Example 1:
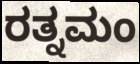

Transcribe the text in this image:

ರತ್ನಮಂ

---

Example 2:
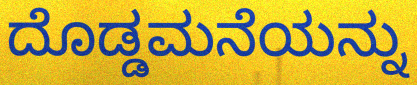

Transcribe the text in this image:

ದೊಡ್ಡಮನೆಯನ್ನು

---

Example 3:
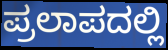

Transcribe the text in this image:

ಪ್ರಲಾಪದಲ್ಲಿ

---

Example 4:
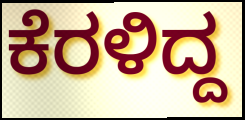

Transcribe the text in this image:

ಕೆರಳಿದ್ದ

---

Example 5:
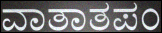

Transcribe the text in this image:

ವಾತಾತಪಂ